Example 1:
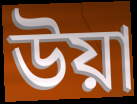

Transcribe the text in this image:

উয়া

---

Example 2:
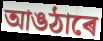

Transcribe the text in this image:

আঙঠাৰে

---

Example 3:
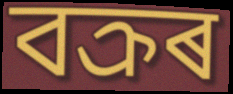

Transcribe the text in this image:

বক্ৰৰ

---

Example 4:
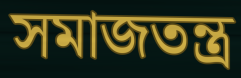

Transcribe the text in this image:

সমাজতন্ত্ৰ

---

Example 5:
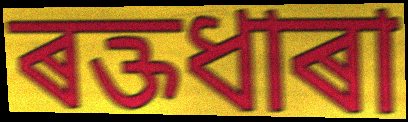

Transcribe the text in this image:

ৰক্তধাৰা